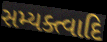
સમ્યક્ત્વાદિ